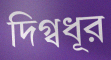
দিগ্বধূর